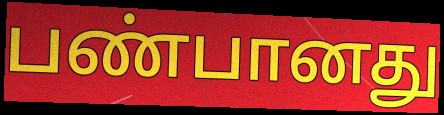
பண்பானது